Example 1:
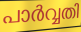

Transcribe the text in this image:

പാർവ്വതി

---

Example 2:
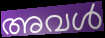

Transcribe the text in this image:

അവൾ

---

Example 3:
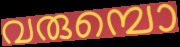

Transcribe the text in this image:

വരുമ്പൊ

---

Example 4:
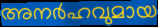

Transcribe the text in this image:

അനർഹവുമായ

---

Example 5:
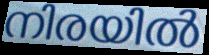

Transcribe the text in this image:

നിരയിൽ